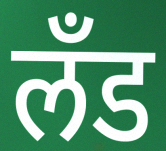
लँड